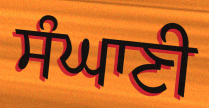
ਸੰਘਾਣੀ